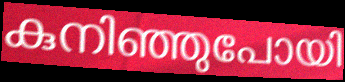
കുനിഞ്ഞുപോയി